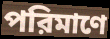
পরিমাণে